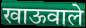
खाऊवाले